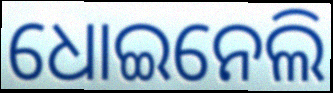
ଧୋଇନେଲି